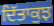
ਦਿੱਤਾਕੁਝ